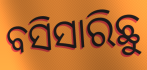
ବସିସାରିଛୁ